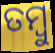
ତମ୍ବୁ